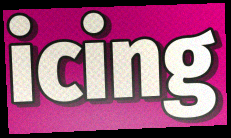
icing